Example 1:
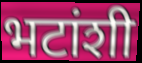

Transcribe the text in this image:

भटांशी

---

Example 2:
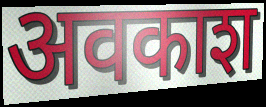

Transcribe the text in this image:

अवकाश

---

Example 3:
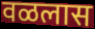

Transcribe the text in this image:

वळलास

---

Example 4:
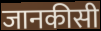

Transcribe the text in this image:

जानकीसी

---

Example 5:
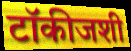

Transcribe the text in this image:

टॉकीजशी